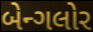
બેન્ગલોર